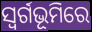
ସ୍ଵର୍ଗଭୂମିରେ